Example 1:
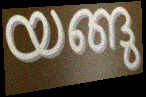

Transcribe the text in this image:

യങ്ങു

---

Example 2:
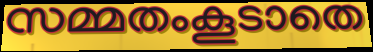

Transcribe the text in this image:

സമ്മതംകൂടാതെ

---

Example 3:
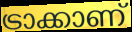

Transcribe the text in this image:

ട്രാക്കാണ്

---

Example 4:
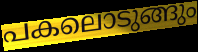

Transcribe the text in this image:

പകലൊടുങ്ങും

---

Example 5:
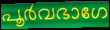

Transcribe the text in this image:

പൂർവഭാഗേ